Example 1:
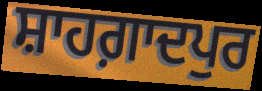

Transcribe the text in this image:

ਸ਼ਾਹਗ਼ਾਦਪੁਰ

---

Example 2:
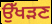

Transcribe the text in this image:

ਉੱਖੜਣ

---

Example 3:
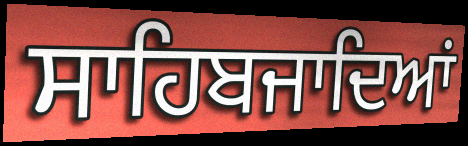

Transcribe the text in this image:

ਸਾਹਿਬਜਾਦਿਆਂ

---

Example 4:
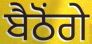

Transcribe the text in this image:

ਬੈਠੋਂਗੇ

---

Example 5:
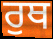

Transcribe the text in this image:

ਰੁਥ